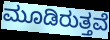
ಮೂಡಿರುತ್ತವೆ